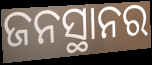
ଜନସ୍ଥାନର